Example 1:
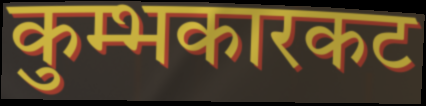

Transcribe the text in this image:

कुम्भकारकट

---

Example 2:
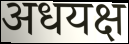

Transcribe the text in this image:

अधयक्ष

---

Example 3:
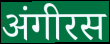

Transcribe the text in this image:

अंगीरस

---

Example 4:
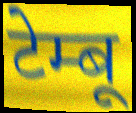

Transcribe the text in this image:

टेम्बू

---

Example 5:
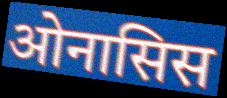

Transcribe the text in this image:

ओनासिस